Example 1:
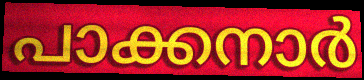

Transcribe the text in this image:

പാക്കനാർ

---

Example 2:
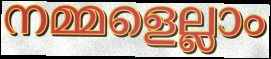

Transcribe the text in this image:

നമ്മളെല്ലാം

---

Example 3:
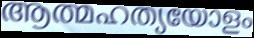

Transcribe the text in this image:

ആത്മഹത്യയോളം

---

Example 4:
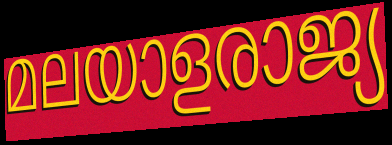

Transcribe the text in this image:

മലയാളരാജ്യ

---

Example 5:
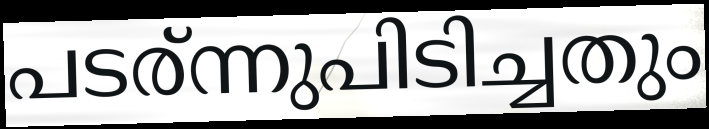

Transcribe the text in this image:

പടര്ന്നുപിടിച്ചതും